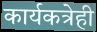
कार्यकत्रेही